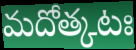
మదోత్కటః